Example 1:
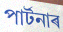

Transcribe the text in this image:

পাৰ্টনাৰ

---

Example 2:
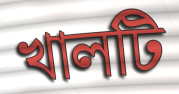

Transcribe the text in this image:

খালটি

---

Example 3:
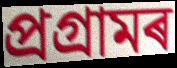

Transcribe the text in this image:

প্ৰগ্ৰামৰ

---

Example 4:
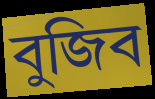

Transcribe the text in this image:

বুজিব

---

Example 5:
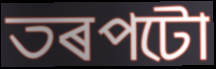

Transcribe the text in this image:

তৰপটো